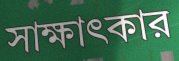
সাক্ষাৎকার